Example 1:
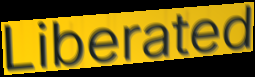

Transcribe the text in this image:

Liberated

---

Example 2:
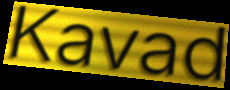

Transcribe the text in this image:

Kavad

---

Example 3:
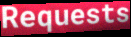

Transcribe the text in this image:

Requests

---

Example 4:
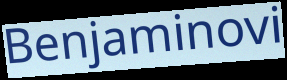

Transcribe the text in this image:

Benjaminovi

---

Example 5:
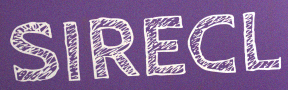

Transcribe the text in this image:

SIRECL